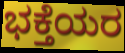
ಭಕ್ತೆಯರ